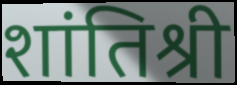
शांतिश्री